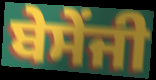
ਬੇਸੇਂਜੀ